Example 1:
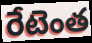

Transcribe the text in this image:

రేటెంత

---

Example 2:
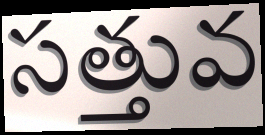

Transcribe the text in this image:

సత్తువ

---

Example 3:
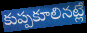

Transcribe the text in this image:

కుప్పకూలినట్లే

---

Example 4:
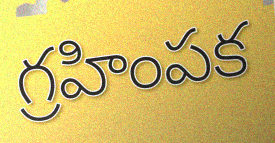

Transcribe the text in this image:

గ్రహింపక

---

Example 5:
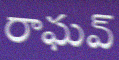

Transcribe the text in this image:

రాఘవ్